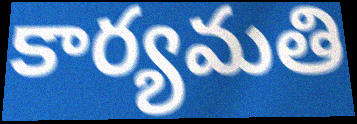
కార్యమతి